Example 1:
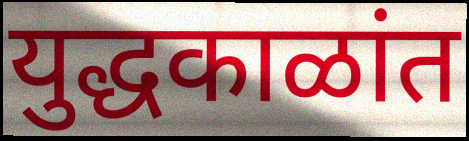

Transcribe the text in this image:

युद्धकाळांत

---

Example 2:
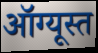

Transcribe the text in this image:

ऑग्यूस्त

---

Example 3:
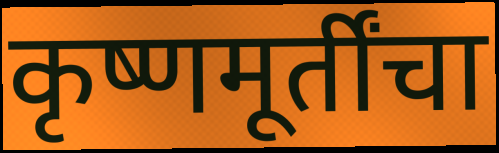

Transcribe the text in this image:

कृष्णमूर्तींचा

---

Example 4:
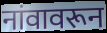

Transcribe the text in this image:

नांवावरून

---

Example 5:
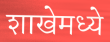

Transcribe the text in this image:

शाखेमध्ये